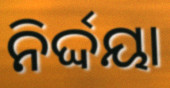
ନିର୍ଦ୍ଦୟା